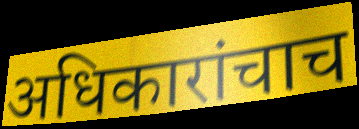
अधिकारांचाच